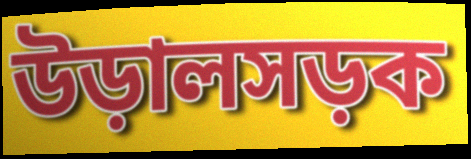
উড়ালসড়ক